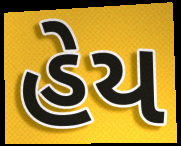
હેય